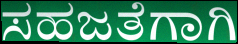
ಸಹಜತೆಗಾಗಿ